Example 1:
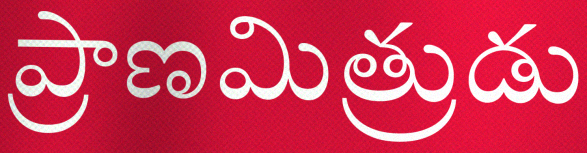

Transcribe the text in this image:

ప్రాణమిత్రుడు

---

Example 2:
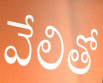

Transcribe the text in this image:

వేలితో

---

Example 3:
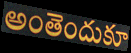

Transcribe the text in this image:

అంతెందుకూ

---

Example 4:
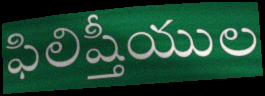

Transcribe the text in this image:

ఫిలిష్తీయుల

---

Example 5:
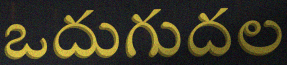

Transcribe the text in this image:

ఒదుగుదల